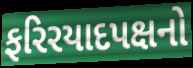
ફરિરયાદપક્ષનો